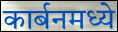
कार्बनमध्ये